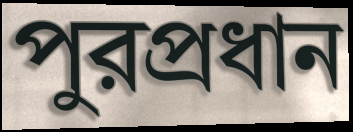
পুরপ্রধান